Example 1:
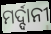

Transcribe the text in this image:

ମର୍ଦ୍ଦାନୀ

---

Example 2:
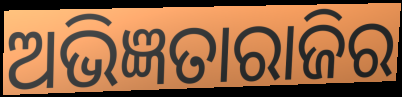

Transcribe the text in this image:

ଅଭିଜ୍ଞତାରାଜିର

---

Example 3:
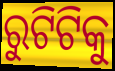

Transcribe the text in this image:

ରୁଟିଟିକୁ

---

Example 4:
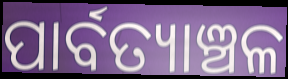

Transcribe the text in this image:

ପାର୍ବତ୍ୟାଞ୍ଚଳ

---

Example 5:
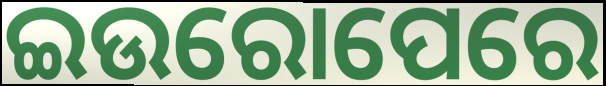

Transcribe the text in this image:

ଇଉରୋପେରେ